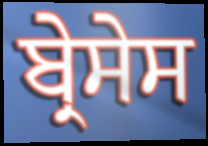
ਬ੍ਰੇਸੇਸ